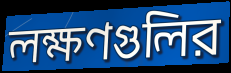
লক্ষণগুলির